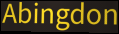
Abingdon